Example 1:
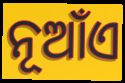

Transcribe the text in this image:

ନୂଆଁଏ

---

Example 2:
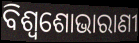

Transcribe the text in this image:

ବିଶ୍ୱଶୋଭାରାଣୀ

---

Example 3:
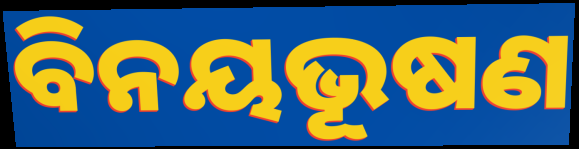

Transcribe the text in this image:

ବିନୟଭୂଷଣ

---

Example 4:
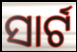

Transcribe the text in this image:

ସାର୍ଟ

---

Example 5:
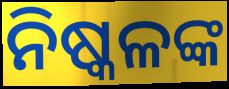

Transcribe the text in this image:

ନିଷ୍କଳଙ୍କ